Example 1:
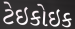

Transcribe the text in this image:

ટેઇકોઇક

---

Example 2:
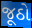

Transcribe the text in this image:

જૂઠો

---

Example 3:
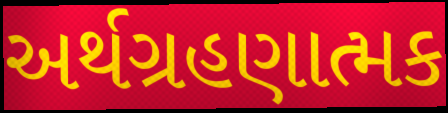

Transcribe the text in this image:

અર્થગ્રહણાત્મક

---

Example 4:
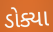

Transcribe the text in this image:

ડોક્યા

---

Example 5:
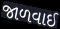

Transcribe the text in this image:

જાળવાઈ